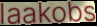
Iaakobs